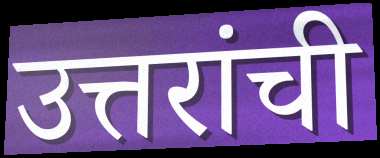
उत्तरांची